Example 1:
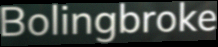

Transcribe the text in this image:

Bolingbroke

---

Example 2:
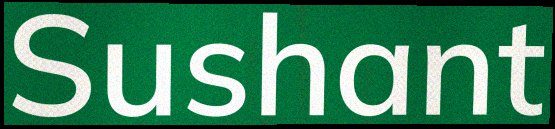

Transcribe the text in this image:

Sushant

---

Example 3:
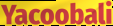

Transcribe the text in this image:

Yacoobali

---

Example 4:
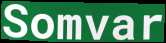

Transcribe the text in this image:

Somvar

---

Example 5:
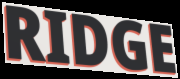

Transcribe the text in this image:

RIDGE